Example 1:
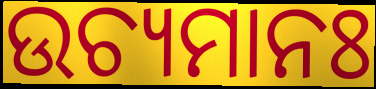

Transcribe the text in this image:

ଉଚ୍ୟମାନଃ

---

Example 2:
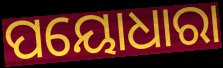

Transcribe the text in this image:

ପୟୋଧାରା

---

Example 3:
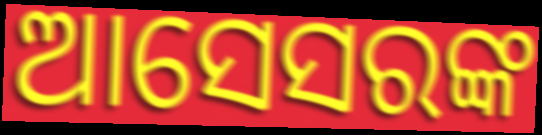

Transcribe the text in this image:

ଆସେସରଙ୍କ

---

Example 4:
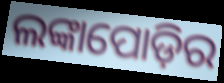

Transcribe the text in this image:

ଲଙ୍କାପୋଡ଼ିର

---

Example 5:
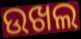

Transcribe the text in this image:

ଉଖଲ